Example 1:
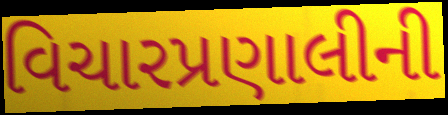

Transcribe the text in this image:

વિચારપ્રણાલીની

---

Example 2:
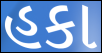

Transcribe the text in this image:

હકા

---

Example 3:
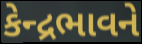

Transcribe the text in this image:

કેન્દ્રભાવને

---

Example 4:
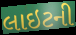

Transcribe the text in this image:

લાઇટની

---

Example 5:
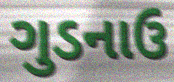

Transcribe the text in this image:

ગુડનાઉ